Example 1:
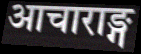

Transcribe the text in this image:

आचाराङ्ग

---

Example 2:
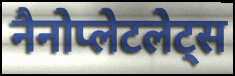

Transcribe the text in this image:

नैनोप्लेटलेट्स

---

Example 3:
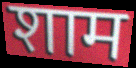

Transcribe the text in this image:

शाम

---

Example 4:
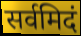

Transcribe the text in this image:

सर्वमिदं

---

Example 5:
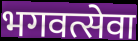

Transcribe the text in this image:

भगवत्सेवा